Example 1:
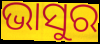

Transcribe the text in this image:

ଭାସୁର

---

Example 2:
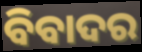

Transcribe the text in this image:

ବିବାଦର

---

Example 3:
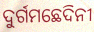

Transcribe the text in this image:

ଦୁର୍ଗମଛେଦିନୀ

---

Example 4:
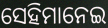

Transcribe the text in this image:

ସେହିମାନେଇ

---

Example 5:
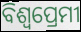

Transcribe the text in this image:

ବିଶ୍ଵପ୍ରେମୀ